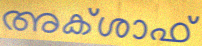
അക്ശാഫ്